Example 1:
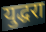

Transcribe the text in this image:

युद्धरा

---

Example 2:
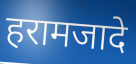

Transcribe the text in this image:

हरामजादे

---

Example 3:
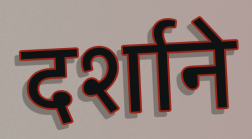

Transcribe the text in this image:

दर्शाने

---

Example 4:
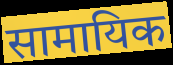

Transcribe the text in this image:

सामायिक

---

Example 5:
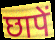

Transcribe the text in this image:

छापें